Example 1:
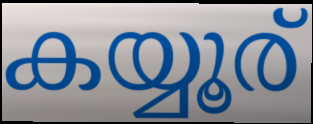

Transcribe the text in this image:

കയ്യൂര്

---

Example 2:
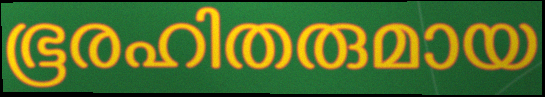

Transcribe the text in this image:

ഭൂരഹിതരുമായ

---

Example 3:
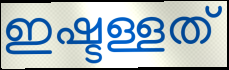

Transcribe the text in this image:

ഇഷ്ടള്ളത്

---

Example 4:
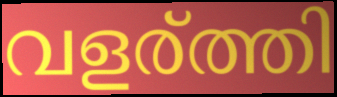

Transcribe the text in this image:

വളര്ത്തി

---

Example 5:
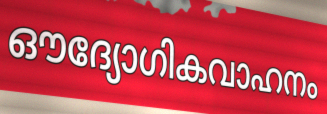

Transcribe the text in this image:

ഔദ്യോഗികവാഹനം